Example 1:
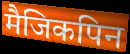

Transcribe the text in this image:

मैजिकपिन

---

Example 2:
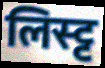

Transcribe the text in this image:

लिस्ट्ट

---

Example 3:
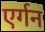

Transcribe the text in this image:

एर्गन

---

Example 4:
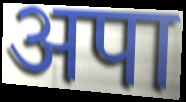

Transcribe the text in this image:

अपा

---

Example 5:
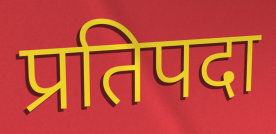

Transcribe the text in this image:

प्रतिपदा